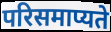
परिसमाप्यते